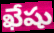
ఖేషు